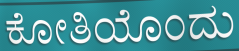
ಕೋತಿಯೊಂದು